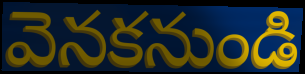
వెనకనుండి